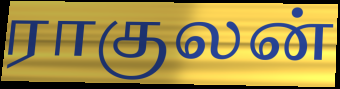
ராகுலன்